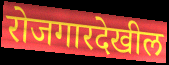
रोजगारदेखील